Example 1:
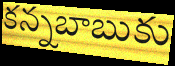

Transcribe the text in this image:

కన్నబాబుకు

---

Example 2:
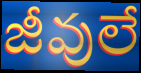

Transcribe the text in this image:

జీవులే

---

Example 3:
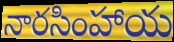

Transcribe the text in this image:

నారసింహాయ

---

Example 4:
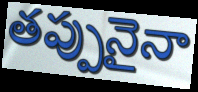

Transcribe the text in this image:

తప్పునైనా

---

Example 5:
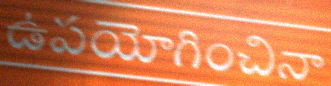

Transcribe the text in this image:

ఉపయోగించినా